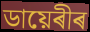
ডায়েৰীৰ